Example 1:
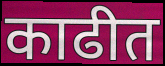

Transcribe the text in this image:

काढीत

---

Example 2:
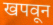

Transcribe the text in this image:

खपवून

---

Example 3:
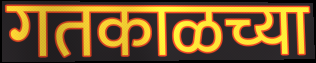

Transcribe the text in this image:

गतकाळच्या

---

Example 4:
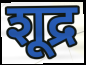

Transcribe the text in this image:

शूद्र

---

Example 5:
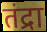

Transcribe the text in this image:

तंद्रा